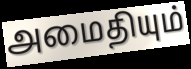
அமைதியும்